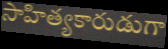
సాహిత్యకారుడుగా